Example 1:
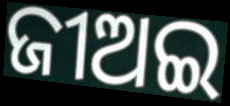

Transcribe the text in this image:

ଜୀଅଇ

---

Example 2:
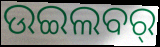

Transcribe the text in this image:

ଉଇଲବର୍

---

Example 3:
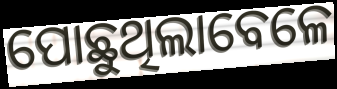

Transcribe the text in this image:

ପୋଛୁଥିଲାବେଳେ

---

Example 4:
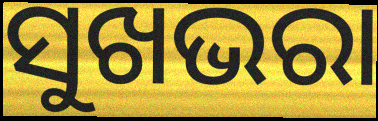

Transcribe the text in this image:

ସୁଖଭରା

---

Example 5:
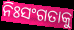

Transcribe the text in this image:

ନିଃସଂଗତାକୁ